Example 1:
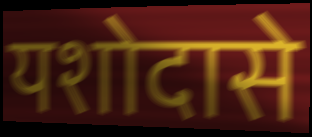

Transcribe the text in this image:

यशोदासे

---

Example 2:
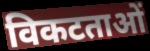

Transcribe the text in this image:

विकटताओं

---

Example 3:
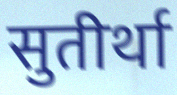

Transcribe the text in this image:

सुतीर्था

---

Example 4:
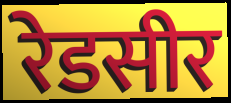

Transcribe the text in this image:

रेडसीर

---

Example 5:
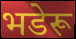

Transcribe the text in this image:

भडेरू